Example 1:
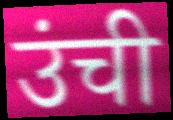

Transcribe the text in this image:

उंची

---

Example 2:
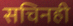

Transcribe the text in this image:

सचिनही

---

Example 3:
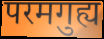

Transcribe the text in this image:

परमगुह्य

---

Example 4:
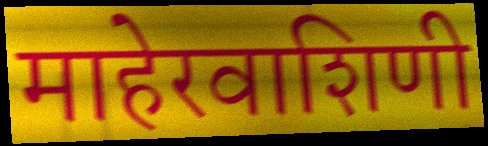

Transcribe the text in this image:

माहेरवाशिणी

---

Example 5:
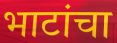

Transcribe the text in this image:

भाटांचा